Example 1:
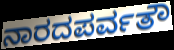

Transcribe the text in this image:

ನಾರದಪರ್ವತೌ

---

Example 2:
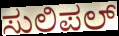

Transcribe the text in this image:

ಸುಲಿಪಲ್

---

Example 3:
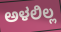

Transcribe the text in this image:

ಅಳಲಿಲ್ಲ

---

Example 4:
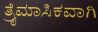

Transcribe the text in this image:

ತ್ರೈಮಾಸಿಕವಾಗಿ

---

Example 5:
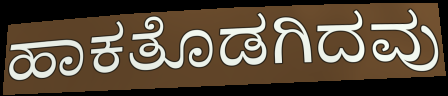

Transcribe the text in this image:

ಹಾಕತೊಡಗಿದವು